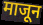
माजून